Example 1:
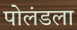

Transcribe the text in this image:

पोलंडला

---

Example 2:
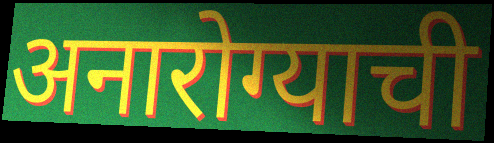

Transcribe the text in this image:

अनारोग्याची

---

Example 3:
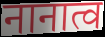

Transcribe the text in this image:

नानात्व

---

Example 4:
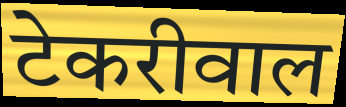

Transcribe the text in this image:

टेकरीवाल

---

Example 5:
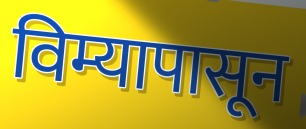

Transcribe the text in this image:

विम्यापासून